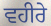
ਵਹੀਰੇ